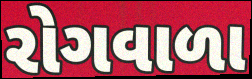
રોગવાળા